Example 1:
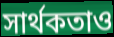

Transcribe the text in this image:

সার্থকতাও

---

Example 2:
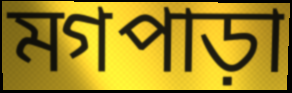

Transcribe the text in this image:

মগপাড়া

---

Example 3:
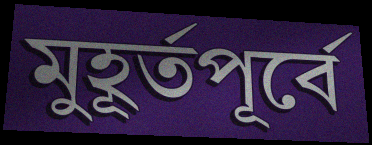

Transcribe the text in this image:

মুহূর্তপূর্বে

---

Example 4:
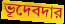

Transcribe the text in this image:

ভূদেবদার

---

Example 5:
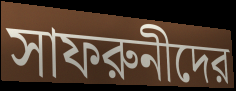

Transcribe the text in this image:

সাফরুনীদের